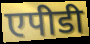
एपीडी